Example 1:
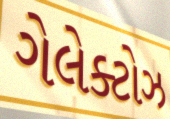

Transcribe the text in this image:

ગેલેક્ટોઝ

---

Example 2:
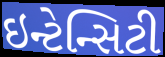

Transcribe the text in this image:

ઇન્ટેન્સિટી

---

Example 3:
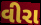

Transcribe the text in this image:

વીરા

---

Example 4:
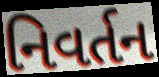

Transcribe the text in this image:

નિવર્તન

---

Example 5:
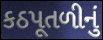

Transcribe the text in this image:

કઠપૂતળીનું